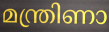
മന്ത്രിണാ